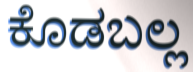
ಕೊಡಬಲ್ಲ